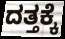
ದತ್ತಕ್ಕೆ